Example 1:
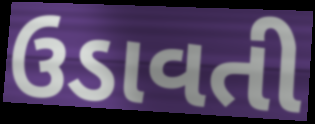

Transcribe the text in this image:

ઉડાવતી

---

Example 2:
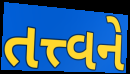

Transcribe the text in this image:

તત્ત્વને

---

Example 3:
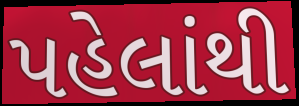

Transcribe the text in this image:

પહેલાંથી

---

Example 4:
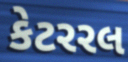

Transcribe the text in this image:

કેટરરલ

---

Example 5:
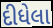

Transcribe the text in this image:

દીધેલા